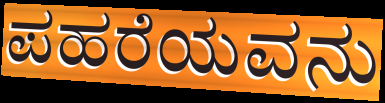
ಪಹರೆಯವನು